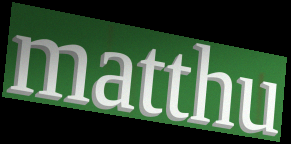
matthu